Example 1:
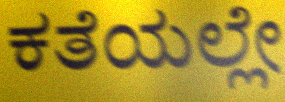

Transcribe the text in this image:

ಕತೆಯಲ್ಲೇ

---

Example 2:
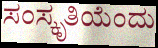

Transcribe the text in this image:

ಸಂಸ್ಕೃತಿಯೆಂದು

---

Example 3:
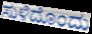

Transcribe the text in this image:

ಸುಳಿದೊಂದು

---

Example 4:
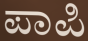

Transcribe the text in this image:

ಪಾಪಿ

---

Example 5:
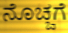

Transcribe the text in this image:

ನೊಚ್ಚಗೆ